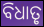
ବିଧାତୃ